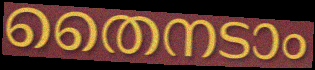
തൈനടാം